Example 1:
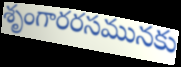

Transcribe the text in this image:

శృంగారరసమునకు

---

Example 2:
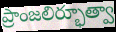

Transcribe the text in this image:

ప్రాంజలిర్భూత్వా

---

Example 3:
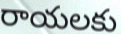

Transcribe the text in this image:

రాయలకు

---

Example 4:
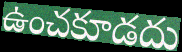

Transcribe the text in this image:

ఉంచకూడదు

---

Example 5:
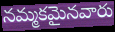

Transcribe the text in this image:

నమ్మకమైనవారు